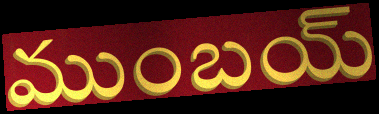
ముంబయ్